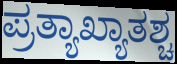
ಪ್ರತ್ಯಾಖ್ಯಾತಶ್ಚ